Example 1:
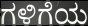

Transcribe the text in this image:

ಗಳಿಗೆಯ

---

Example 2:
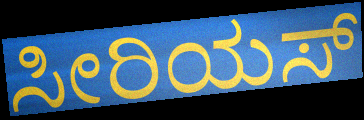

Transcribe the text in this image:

ಸೀರಿಯಸ್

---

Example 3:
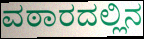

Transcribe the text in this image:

ವಠಾರದಲ್ಲಿನ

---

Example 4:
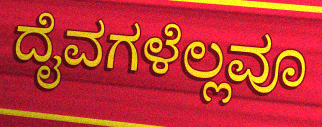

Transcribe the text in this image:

ದೈವಗಳೆಲ್ಲವೂ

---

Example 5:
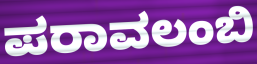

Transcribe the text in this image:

ಪರಾವಲಂಬಿ